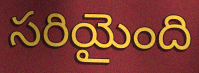
సరియైంది